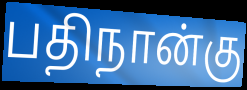
பதிநான்கு